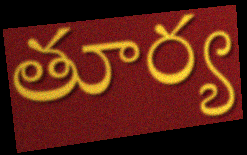
తూర్య